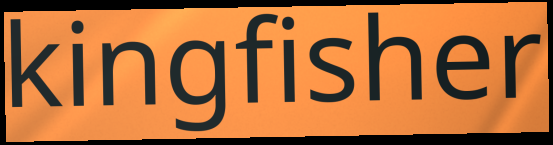
kingfisher